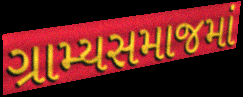
ગ્રામ્યસમાજમાં